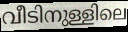
വീടിനുള്ളിലെ